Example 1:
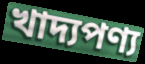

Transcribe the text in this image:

খাদ্যপণ্য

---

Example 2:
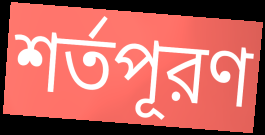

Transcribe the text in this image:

শর্তপূরণ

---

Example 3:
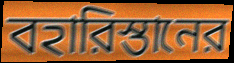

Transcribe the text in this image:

বহারিস্তানের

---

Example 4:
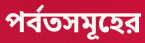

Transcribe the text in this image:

পর্বতসমূহের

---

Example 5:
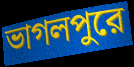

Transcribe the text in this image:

ভাগলপুরে